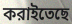
করাইতেছে